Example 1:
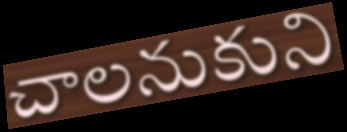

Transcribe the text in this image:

చాలనుకుని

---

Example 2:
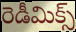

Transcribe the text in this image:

రెడీమిక్స్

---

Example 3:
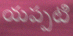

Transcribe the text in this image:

యప్పటి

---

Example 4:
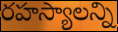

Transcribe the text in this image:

రహస్యాలన్ని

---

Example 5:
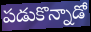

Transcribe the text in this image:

పడుకొన్నాడో